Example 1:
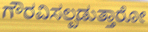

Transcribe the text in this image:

ಗೌರವಿಸಲ್ಪಡುತ್ತಾರೋ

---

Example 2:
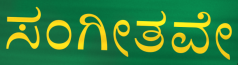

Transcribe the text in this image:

ಸಂಗೀತವೇ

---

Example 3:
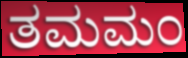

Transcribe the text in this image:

ತಮಮಂ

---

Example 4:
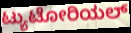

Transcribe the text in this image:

ಟ್ಯುಟೋರಿಯಲ್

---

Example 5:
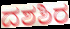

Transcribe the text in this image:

ದಶಶಿರ